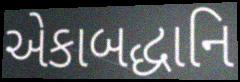
એકાબદ્ધાનિ